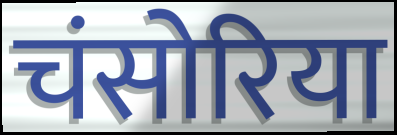
चंसोरिया